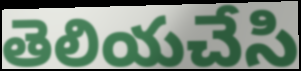
తెలియచేసి